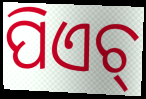
ପିଏଚ୍